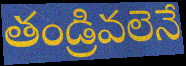
తండ్రివలెనే